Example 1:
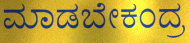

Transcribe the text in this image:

ಮಾಡಬೇಕಂದ್ರ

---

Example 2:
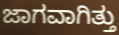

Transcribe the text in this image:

ಜಾಗವಾಗಿತ್ತು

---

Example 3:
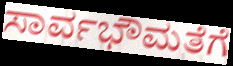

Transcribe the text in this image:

ಸಾರ್ವಭೌಮತೆಗೆ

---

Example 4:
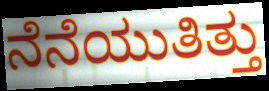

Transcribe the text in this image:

ನೆನೆಯುತಿತ್ತು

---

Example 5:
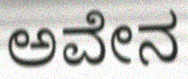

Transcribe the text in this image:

ಅವೇನ